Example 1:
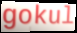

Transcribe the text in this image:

gokul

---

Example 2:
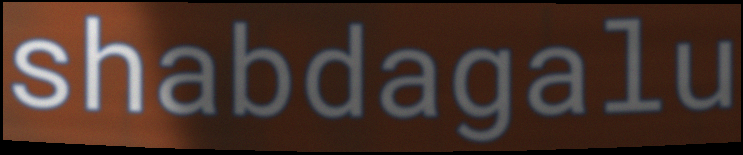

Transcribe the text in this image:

shabdagalu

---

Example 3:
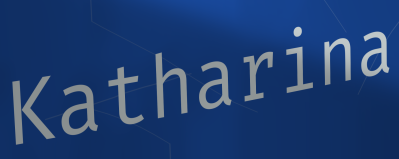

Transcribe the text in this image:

Katharina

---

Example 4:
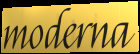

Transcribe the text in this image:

moderna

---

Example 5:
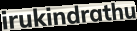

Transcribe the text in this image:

irukindrathu